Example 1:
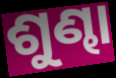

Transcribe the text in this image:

ଶୁଣ୍ଢା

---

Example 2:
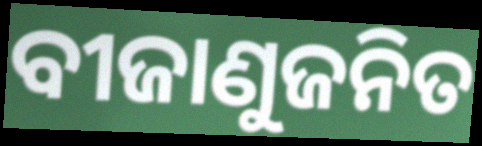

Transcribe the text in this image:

ବୀଜାଣୁଜନିତ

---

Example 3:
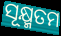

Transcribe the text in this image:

ସୂକ୍ଷ୍ମତମ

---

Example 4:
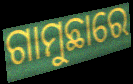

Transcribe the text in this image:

ଗାମୁଛାରେ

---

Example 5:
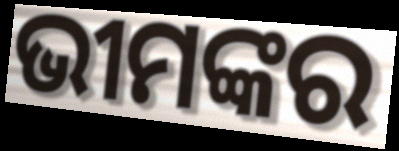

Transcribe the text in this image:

ଭୀମଙ୍କର